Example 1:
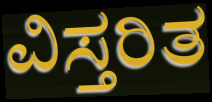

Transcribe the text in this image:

ವಿಸ್ತರಿತ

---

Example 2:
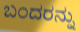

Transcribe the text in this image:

ಬಂದರನ್ನು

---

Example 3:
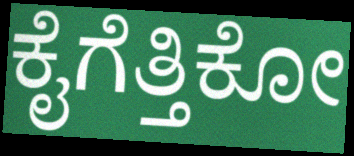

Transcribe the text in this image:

ಕೈಗೆತ್ತಿಕೋ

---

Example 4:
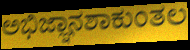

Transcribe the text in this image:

ಅಭಿಜ್ಞಾನಶಾಕುಂತಲ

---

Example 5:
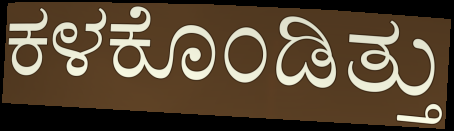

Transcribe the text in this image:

ಕಳಕೊಂಡಿತ್ತು